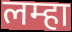
लम्हा